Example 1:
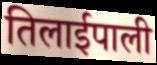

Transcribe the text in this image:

तिलाईपाली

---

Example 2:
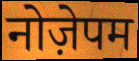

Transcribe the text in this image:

नोज़ेपम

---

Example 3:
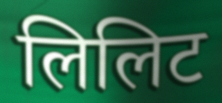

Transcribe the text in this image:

लिलिट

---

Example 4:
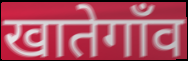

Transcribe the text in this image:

खातेगाँव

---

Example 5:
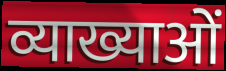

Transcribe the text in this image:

व्याख्याओं